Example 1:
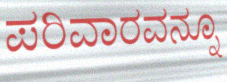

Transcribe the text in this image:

ಪರಿವಾರವನ್ನೂ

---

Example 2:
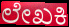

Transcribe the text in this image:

ಲೇಖಕಿ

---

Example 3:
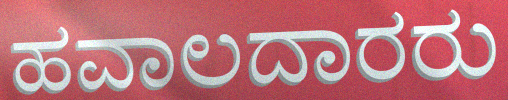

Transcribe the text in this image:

ಹವಾಲದಾರರು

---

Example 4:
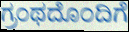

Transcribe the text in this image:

ಗ್ರಂಥದೊಂದಿಗೆ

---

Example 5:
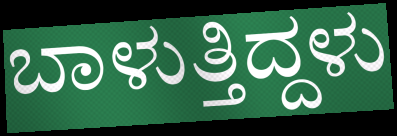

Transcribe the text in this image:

ಬಾಳುತ್ತಿದ್ದಳು